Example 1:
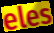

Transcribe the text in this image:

eles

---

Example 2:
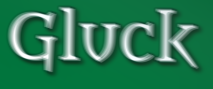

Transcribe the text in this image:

Gluck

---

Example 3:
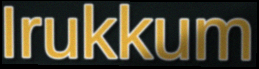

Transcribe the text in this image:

Irukkum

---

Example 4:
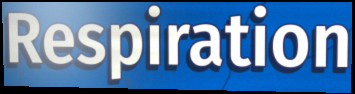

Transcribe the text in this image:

Respiration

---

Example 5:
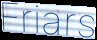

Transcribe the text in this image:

Friars